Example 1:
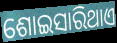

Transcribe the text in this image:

ଶୋଇସାରିଥାଏ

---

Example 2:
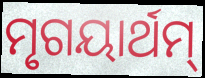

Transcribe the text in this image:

ମୃଗୟାର୍ଥମ୍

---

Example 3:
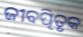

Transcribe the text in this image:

ଜୀବତ୍ପିତୃକ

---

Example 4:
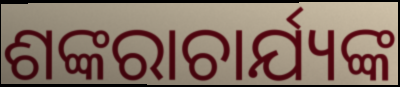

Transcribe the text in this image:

ଶଙ୍କରାଚାର୍ଯ୍ୟଙ୍କ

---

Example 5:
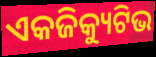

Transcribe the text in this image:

ଏକଜିକ୍ୟୁଟିଭ